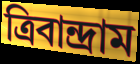
ত্রিবান্দ্রাম